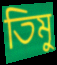
তিমু